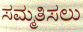
ಸಮ್ಮತಿಸಲು